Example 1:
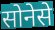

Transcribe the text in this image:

सोनेसे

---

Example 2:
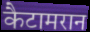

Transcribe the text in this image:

कैटामरान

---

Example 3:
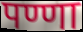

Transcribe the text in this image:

पण्णा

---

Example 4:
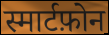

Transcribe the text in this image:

स्‍मार्टफ़ोन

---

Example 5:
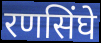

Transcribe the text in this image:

रणसिंघे